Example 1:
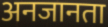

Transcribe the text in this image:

अनजानता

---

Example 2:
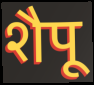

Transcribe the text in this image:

शैपू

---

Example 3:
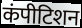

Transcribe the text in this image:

कंपीटिशन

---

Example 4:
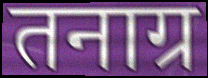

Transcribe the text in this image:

तनाग्र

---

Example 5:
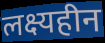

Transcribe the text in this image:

लक्ष्यहीन